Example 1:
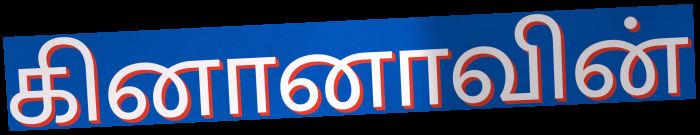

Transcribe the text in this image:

கினானாவின்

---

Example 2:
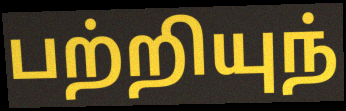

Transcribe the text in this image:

பற்றியுந்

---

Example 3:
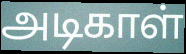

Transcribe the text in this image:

அடிகாள்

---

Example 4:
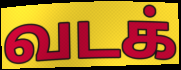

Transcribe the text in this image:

வடக்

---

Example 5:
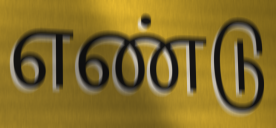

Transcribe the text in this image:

எண்டு